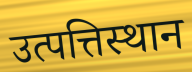
उत्पत्तिस्थान